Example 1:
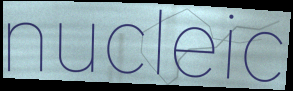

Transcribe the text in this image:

nucleic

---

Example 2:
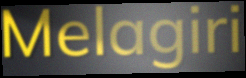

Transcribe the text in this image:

Melagiri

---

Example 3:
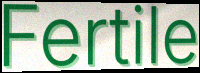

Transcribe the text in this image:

Fertile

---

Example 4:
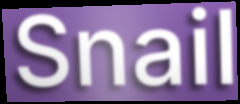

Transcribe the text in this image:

Snail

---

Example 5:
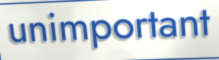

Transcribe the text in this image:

unimportant